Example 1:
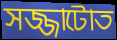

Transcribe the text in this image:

সজ্জাটোত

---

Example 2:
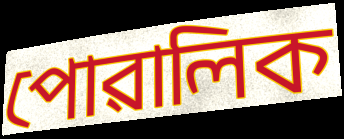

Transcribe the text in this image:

পোৱালিক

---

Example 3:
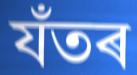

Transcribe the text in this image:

যঁতৰ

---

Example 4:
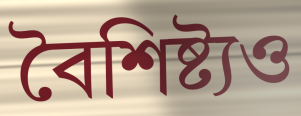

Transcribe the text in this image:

বৈশিষ্ট্যও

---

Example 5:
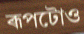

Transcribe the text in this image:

ৰূপটোও